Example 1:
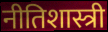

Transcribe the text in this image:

नीतिशास्त्री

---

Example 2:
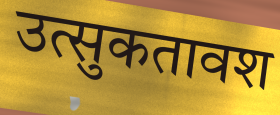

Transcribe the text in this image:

उत्सुकतावश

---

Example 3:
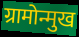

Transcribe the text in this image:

ग्रामोन्मुख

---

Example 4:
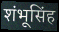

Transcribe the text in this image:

शंभूसिंह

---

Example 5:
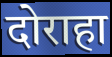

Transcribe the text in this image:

दोराहा